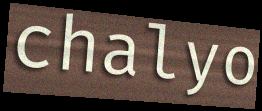
chalyo